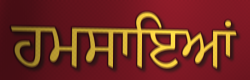
ਹਮਸਾਇਆਂ